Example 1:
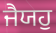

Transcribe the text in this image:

ਜੈਯਹੁ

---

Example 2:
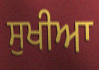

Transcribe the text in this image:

ਸੁਖੀਆ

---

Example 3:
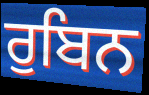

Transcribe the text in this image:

ਰੁਬਿਨ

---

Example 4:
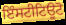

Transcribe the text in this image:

ਇੰਸਟੀਟਿਊਟੋ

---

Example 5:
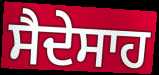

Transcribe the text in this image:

ਸੈਦੇਸਾਹ